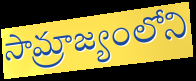
సామ్రాజ్యంలోని